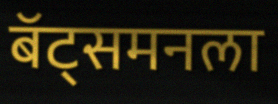
बॅट्समनला